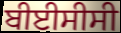
ਬੀਈਸੀਸੀ